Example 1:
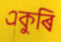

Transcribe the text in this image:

একুৰি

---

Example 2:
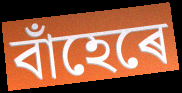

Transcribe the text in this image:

বাঁহেৰে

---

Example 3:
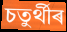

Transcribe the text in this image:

চতুৰ্থীৰ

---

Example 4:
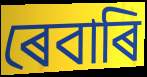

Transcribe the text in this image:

ৰেবাৰি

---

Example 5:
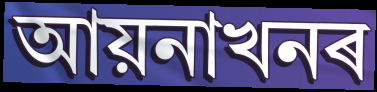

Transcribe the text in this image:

আয়নাখনৰ